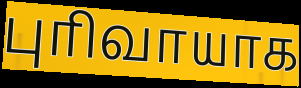
புரிவாயாக